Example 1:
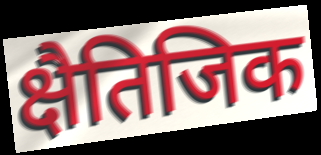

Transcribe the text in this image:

क्षैतिजिक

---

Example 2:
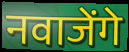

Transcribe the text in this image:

नवाजेंगे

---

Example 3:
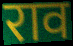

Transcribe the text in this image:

राव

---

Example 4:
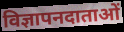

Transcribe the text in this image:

विज्ञापनदाताओं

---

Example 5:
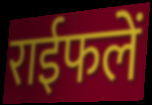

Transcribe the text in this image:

राईफलें